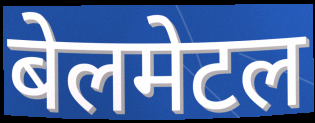
बेलमेटल